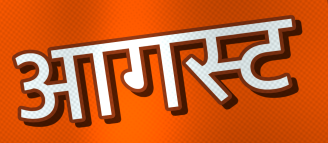
आगस्ट